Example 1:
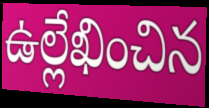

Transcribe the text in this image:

ఉల్లేఖించిన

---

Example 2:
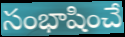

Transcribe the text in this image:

సంభాషించే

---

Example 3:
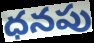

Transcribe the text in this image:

ధనపు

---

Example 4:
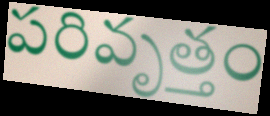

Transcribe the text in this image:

పరివృత్తం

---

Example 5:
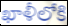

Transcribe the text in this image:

ఖాళీలోకి